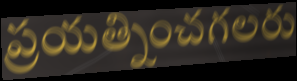
ప్రయత్నించగలరు